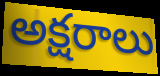
అక్షరాలు